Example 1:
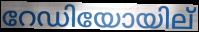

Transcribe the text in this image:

റേഡിയോയില്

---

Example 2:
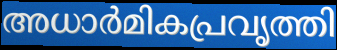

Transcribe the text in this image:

അധാർമികപ്രവൃത്തി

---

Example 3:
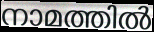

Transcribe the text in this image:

നാമത്തിൽ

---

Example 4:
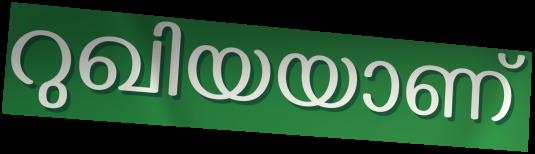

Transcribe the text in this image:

റുഖിയയാണ്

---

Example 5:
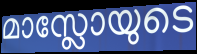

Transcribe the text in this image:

മാസ്ലോയുടെ